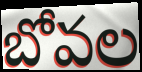
బోవల